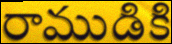
రాముడికి